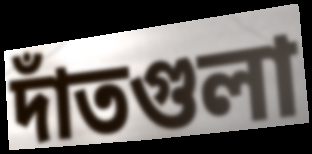
দাঁতগুলা